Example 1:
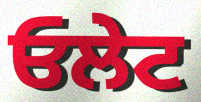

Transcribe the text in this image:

ਓਲੇਟ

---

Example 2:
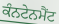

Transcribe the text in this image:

ਕੰਨਟੇਨਮੈਂਟ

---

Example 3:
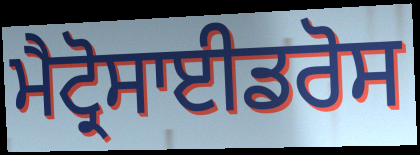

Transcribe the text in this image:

ਮੈਟ੍ਰੋਸਾਈਡਰੋਸ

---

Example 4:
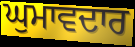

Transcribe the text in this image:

ਘੁਮਾਵਦਾਰ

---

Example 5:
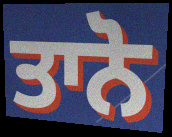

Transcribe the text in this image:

ਤਾਨੋ